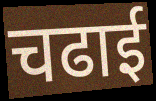
चढाई